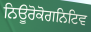
ਨਿਊਰੋਕੋਗਨਿਟਿਵ